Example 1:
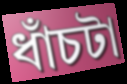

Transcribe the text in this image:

ধাঁচটা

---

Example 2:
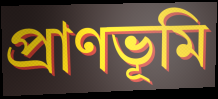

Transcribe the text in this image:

প্রাণভূমি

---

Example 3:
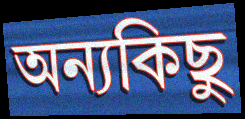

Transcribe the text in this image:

অন্যকিছু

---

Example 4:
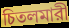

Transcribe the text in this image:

চিতলমারী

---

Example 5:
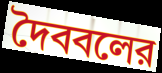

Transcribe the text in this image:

দৈববলের